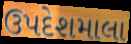
ઉપદેશમાલા